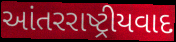
આંતરરાષ્ટ્રીયવાદ